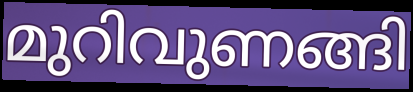
മുറിവുണങ്ങി